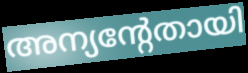
അന്യന്റേതായി